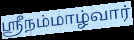
ஸ்ரீநம்மாழ்வார்